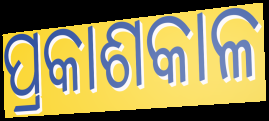
ପ୍ରକାଶକାଳ